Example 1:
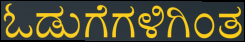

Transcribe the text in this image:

ಓಡುಗೆಗಳಿಗಿಂತ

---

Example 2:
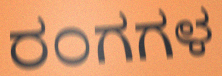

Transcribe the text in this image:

ರಂಗಗಳ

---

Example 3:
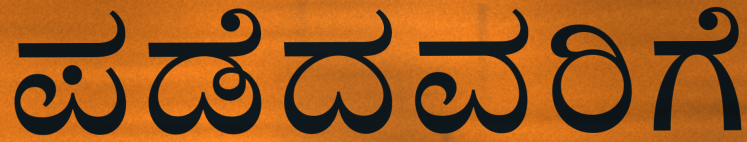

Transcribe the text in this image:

ಪಡೆದವರಿಗೆ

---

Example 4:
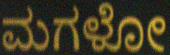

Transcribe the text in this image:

ಮಗಳೋ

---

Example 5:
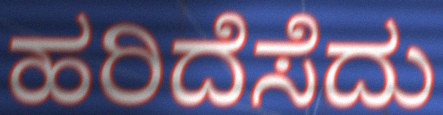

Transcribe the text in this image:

ಹರಿದೆಸೆದು